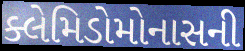
ક્લેમિડોમોનાસની